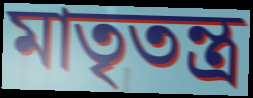
মাতৃতন্ত্র